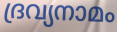
ദ്രവ്യനാമം